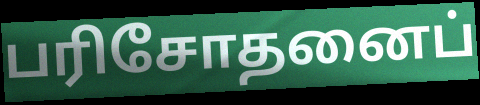
பரிசோதனைப்